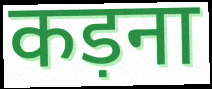
कड़ना